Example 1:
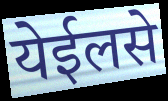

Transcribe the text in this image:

येईलसे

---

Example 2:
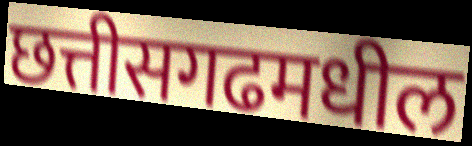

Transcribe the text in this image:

छत्तीसगढमधील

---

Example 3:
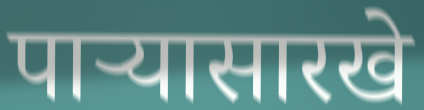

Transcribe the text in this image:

पाऱ्यासारखे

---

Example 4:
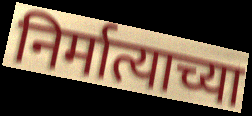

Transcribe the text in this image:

निर्मात्याच्या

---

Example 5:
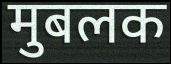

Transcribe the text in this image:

मुबलक